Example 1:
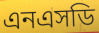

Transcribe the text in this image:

এনএসডি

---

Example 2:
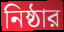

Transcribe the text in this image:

নিষ্ঠার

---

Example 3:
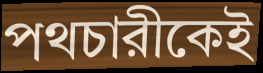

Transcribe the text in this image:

পথচারীকেই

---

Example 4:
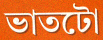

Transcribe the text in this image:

ভাতটো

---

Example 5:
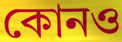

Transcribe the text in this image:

কোনও